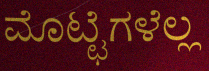
ಮೊಟ್ಟೆಗಳೆಲ್ಲ